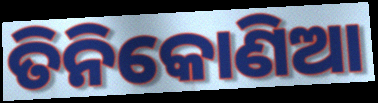
ତିନିକୋଣିଆ